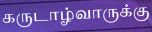
கருடாழ்வாருக்கு